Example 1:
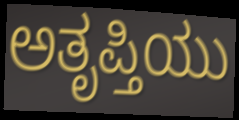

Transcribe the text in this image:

ಅತೃಪ್ತಿಯು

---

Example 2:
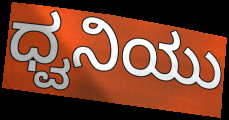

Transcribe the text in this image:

ಧ್ವನಿಯು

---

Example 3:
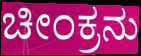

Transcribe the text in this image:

ಚೀಂಕ್ರನು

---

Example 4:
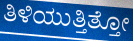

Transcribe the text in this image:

ತಿಳಿಯುತ್ತಿತ್ತೋ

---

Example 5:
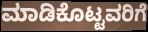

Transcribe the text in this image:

ಮಾಡಿಕೊಟ್ಟವರಿಗೆ